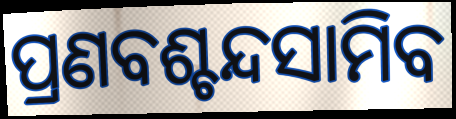
ପ୍ରଣବଶ୍ଚନ୍ଦସାମିବ